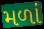
મળાં